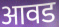
आवड